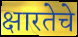
क्षारतेचे